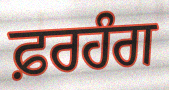
ਫ਼ਰਹੰਗ